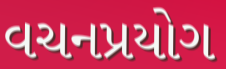
વચનપ્રયોગ